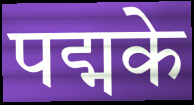
पद्मके